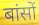
बांसों